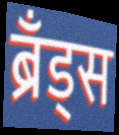
ब्रँड्स